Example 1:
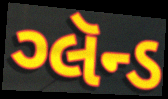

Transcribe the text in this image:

ગ્લૅન્ડ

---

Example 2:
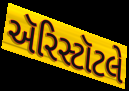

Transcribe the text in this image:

ઍરિસ્ટૉટલે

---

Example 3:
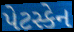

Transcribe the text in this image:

પેટસ્કેન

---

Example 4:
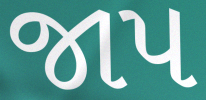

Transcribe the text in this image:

જાપ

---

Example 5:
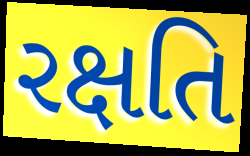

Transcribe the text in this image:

રક્ષતિ